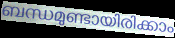
ബന്ധമുണ്ടായിരിക്കാം